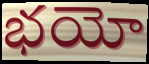
భయో